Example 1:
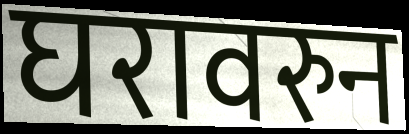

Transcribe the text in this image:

घरावरुन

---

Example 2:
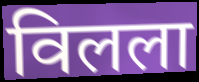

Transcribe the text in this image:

विलला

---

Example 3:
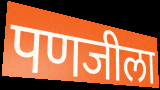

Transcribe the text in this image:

पणजीला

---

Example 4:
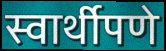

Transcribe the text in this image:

स्वार्थीपणे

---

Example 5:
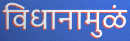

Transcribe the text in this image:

विधानामुळं